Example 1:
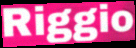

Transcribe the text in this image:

Riggio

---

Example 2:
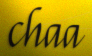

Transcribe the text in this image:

chaa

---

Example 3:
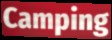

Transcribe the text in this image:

Camping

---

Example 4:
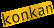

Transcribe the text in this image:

konkan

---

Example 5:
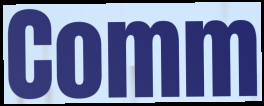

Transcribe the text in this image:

Comm